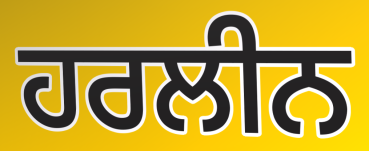
ਹਰਲੀਨ